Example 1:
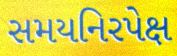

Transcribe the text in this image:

સમયનિરપેક્ષ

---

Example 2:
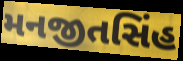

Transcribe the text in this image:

મનજીતસિંહ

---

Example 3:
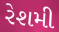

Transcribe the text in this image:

રેશમી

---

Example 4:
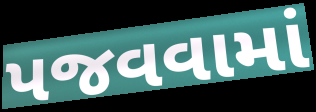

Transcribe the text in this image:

પજવવામાં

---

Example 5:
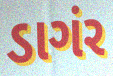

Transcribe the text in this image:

ડાગંર